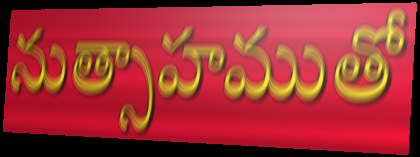
నుత్సాహముతో